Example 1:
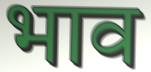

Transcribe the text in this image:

भाव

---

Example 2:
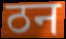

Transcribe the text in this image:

ठन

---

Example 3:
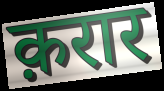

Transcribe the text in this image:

क़रार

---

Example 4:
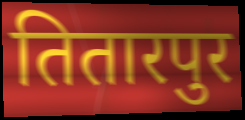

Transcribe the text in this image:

तितारपुर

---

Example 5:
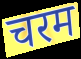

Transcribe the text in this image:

चरम